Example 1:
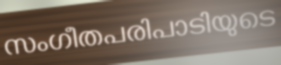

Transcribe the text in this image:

സംഗീതപരിപാടിയുടെ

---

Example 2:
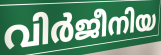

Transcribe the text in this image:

വിർജീനിയ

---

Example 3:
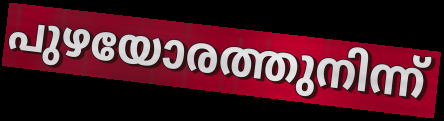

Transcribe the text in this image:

പുഴയോരത്തുനിന്ന്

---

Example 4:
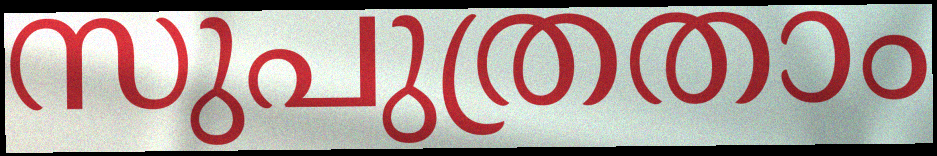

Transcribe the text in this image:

സുപുത്രതാം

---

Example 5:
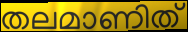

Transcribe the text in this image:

തലമാണിത്